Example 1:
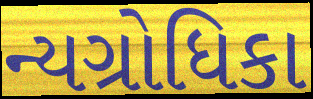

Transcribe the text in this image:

ન્યગ્રોધિકા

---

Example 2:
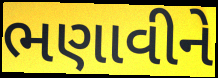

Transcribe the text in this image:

ભણાવીને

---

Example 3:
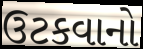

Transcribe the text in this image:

ઉટકવાનો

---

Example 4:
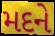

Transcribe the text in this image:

મદને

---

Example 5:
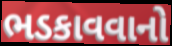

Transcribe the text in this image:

ભડકાવવાનો